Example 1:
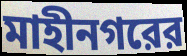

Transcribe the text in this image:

মাহীনগরের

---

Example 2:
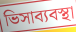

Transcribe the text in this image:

ভিসাব্যবস্থা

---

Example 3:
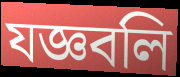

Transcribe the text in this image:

যজ্ঞবলি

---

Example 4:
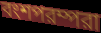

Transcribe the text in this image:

বংশপরম্পরা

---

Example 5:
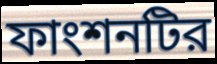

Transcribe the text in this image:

ফাংশনটির